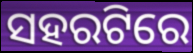
ସହରଟିରେ